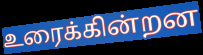
உரைக்கின்றன